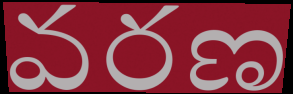
వరణ